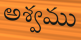
అశ్వము